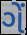
ગેં